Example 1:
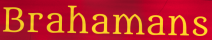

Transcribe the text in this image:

Brahamans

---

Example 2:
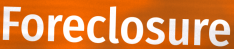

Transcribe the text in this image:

Foreclosure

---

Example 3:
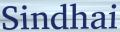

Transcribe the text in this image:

Sindhai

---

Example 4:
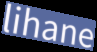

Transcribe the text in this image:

lihane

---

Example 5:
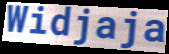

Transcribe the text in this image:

Widjaja